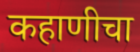
कहाणीचा